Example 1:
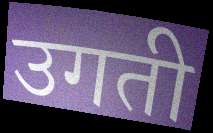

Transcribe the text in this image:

उगती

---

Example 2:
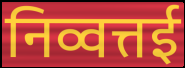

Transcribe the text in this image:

निव्वत्तई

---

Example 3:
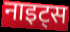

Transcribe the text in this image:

नाइट्स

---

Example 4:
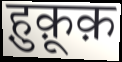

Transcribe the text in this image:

ह़ुक़ूक़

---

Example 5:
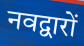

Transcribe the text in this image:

नवद्वारों